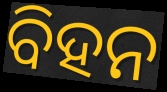
ବିହନ